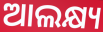
ଆଲକ୍ଷ୍ୟ